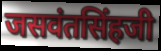
जसवंतसिंहजी